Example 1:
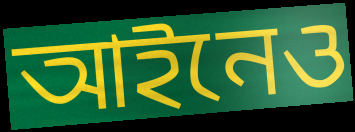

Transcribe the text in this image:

আইনেও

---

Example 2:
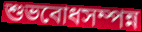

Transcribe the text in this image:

শুভবোধসম্পন্ন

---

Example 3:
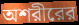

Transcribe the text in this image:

অশরীরের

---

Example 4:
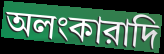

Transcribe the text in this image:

অলংকারাদি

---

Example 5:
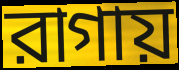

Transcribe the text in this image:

রাগায়